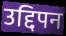
उद्दिपन